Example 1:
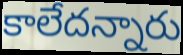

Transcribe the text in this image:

కాలేదన్నారు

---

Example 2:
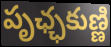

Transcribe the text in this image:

పృఛ్ఛకుణ్ణి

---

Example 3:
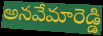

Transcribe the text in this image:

అనవేమారెడ్డి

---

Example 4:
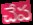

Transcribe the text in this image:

చేప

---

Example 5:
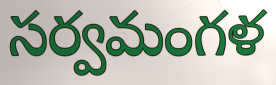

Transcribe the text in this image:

సర్వమంగళ